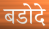
बडोदे